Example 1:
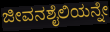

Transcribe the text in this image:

ಜೀವನಶೈಲಿಯನ್ನೇ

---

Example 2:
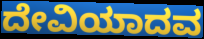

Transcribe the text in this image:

ದೇವಿಯಾದವ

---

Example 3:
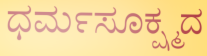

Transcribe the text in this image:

ಧರ್ಮಸೂಕ್ಷ್ಮದ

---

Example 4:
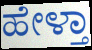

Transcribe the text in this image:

ಹೇಳ್ತಾ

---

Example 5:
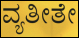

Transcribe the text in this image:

ವ್ಯತೀತೇ